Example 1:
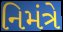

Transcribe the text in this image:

નિમંત્રે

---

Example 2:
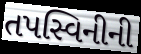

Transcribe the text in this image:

તપસ્વિનીની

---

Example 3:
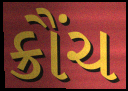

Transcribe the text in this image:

ક્રૌંચ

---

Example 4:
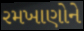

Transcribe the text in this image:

રમખાણોને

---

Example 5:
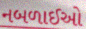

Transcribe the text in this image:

નબળાઈઓ